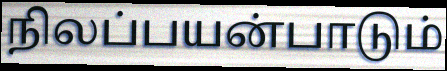
நிலப்பயன்பாடும்